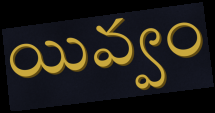
యివ్వం